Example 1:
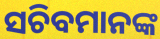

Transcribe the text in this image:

ସଚିବମାନଙ୍କ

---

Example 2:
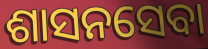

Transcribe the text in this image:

ଶାସନସେବା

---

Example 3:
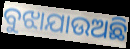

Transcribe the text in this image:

ବୁଝାଯାଉଅଛି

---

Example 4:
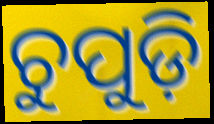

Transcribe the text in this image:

ଚୁପୁଡ଼ି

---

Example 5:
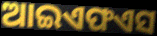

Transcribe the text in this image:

ଆଇଏଫଏସ